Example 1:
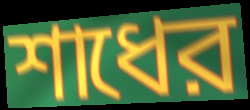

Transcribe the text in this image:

শাধের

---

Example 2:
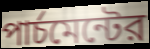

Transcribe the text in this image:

পার্চমেন্টের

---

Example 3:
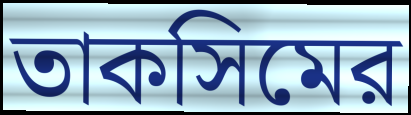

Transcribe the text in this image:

তাকসিমের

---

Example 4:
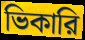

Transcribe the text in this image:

ভিকারি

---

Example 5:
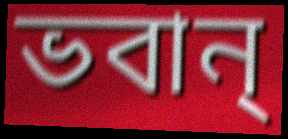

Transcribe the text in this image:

ভবান্